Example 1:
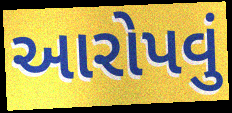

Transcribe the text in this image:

આરોપવું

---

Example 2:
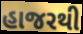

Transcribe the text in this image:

હાજરથી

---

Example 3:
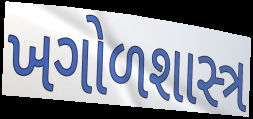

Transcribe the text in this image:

ખગોળશાસ્ત્ર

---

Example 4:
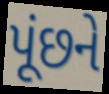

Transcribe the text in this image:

પૂંછને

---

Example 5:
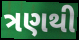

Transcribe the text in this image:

ત્રણથી